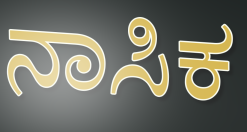
ನಾಸಿಕ